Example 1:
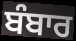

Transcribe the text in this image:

ਬੰਬਾਰ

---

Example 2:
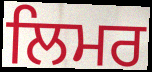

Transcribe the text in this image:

ਲਿਮਰ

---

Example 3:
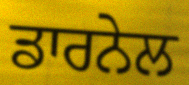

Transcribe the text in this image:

ਡਾਰਨੇਲ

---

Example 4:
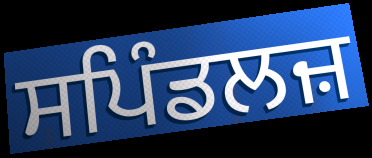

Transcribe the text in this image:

ਸਪਿੰਡਲਜ਼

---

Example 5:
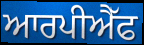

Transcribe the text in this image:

ਆਰਪੀਐੱਫ